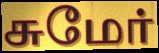
சுமேர்